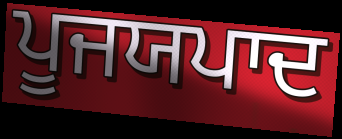
ਪੂਜਯਪਾਦ